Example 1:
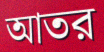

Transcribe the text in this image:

আতর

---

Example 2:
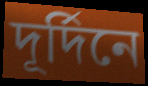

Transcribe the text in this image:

দূর্দিনে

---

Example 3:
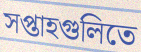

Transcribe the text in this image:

সপ্তাহগুলিতে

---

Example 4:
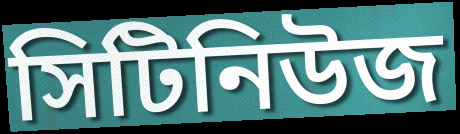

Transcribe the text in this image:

সিটিনিউজ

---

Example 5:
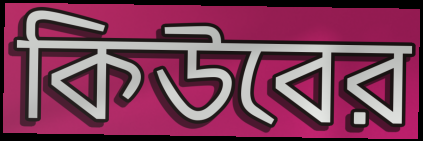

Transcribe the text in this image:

কিউবের